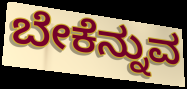
ಬೇಕೆನ್ನುವ